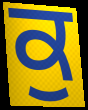
ਕੁ